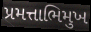
પ્રમત્તાભિમુખ